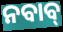
ନବାବ୍